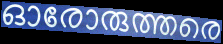
ഓരോരുത്തരെ